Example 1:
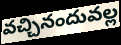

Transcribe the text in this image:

వచ్చినందువల్ల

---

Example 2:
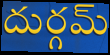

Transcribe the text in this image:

దుర్గమ్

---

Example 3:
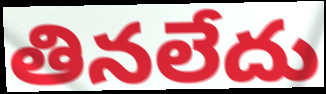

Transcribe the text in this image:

తినలేదు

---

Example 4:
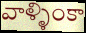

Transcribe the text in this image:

వాళ్ళింకా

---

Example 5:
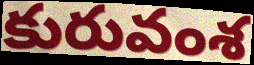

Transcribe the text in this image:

కురువంశ